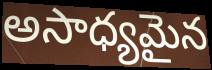
అసాధ్యమైన